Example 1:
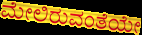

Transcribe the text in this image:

ಮೇಲಿರುವಂತೆಯೇ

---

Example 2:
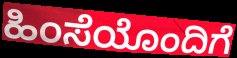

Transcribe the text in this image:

ಹಿಂಸೆಯೊಂದಿಗೆ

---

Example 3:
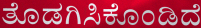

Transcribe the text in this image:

ತೊಡಗಿಸಿಕೊಂಡಿದೆ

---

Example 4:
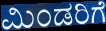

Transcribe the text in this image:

ಮಿಂಡರಿಗೆ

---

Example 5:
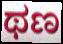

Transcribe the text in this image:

ಥಣ